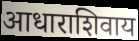
आधाराशिवाय